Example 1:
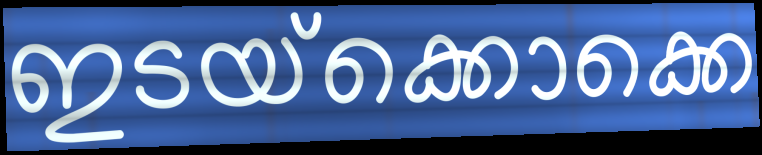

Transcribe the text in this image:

ഇടയ്‌ക്കൊക്കെ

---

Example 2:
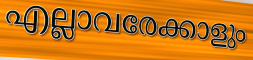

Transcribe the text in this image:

എല്ലാവരേക്കാളും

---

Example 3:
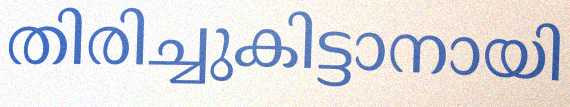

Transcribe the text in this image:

തിരിച്ചുകിട്ടാനായി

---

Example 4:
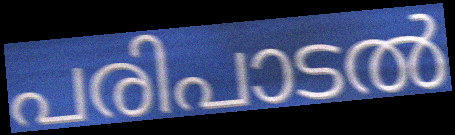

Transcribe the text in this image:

പരിപാടൽ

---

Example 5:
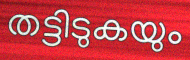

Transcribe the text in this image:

തട്ടിടുകയും